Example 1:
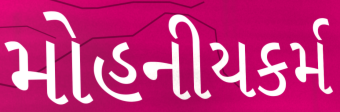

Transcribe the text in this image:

મોહનીયકર્મ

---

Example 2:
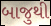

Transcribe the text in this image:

બાજુથી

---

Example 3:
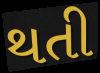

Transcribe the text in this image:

થતી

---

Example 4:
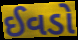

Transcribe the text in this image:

ઈવડો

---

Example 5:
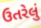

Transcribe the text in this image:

ઉતરેલું